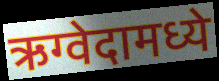
ऋग्वेदामध्ये